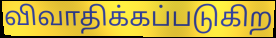
விவாதிக்கப்படுகிற